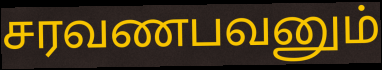
சரவணபவனும்